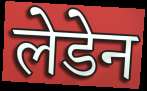
लेडेन